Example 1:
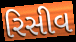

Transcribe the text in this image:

રિસીવ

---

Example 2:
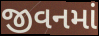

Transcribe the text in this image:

જીવનમાં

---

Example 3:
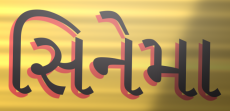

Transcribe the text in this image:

સિનેમા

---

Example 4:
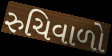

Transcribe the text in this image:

રુચિવાળો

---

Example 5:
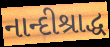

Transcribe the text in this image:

નાન્દીશ્રાદ્ધ